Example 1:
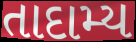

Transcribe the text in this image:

તાદામ્ય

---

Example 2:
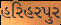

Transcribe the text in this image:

હરિહરપુર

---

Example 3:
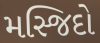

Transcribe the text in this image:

મસ્જિદો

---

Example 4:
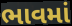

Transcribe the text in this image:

ભાવમાં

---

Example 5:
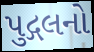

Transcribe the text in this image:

પુદ્ગલનો